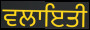
ਵਲਾਇਤੀ